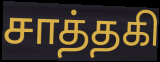
சாத்தகி